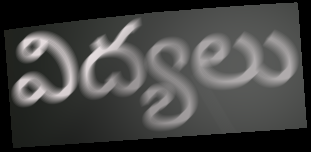
విద్యలు